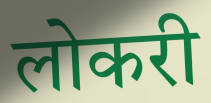
लोकरी